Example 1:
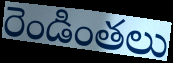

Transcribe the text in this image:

రెండింతలు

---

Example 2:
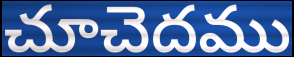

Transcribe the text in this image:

చూచెదము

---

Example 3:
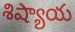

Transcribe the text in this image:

శిష్యాయ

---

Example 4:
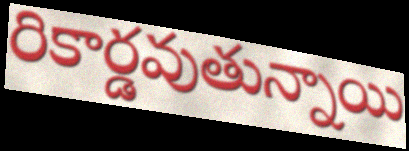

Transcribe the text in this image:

రికార్డవుతున్నాయి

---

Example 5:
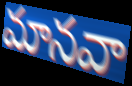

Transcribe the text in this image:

మానవా